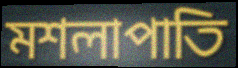
মশলাপাতি